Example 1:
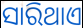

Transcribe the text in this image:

ସାରିଥାଏ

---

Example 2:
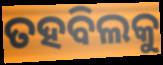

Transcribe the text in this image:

ତହବିଲକୁ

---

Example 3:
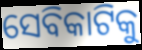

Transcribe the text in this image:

ସେବିକାଟିକୁ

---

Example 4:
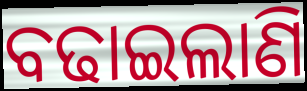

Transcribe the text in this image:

ବଢାଇଲାଣି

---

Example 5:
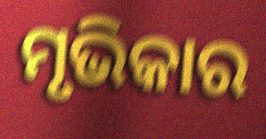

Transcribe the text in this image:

ମୃଭିକାର